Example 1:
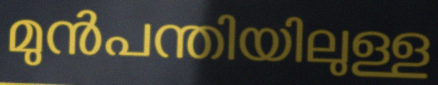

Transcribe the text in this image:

മുൻപന്തിയിലുള്ള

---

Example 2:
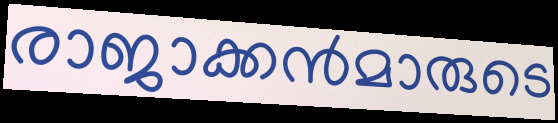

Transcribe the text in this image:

രാജാക്കൻമാരുടെ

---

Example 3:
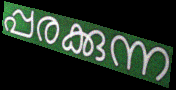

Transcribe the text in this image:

പ്പരക്കുന്ന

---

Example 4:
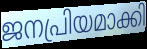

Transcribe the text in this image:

ജനപ്രിയമാക്കി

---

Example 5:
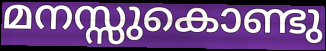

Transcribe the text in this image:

മനസ്സുകൊണ്ടു